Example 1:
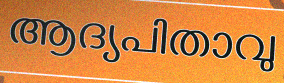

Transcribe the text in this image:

ആദ്യപിതാവു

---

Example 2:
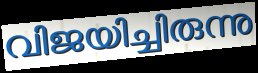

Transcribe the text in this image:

വിജയിച്ചിരുന്നു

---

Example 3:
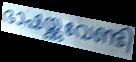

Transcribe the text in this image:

ഭാഷയ്ക്കുവേണ്ടി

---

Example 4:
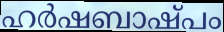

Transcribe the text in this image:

ഹർഷബാഷ്പം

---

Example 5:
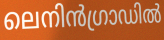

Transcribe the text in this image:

ലെനിൻഗ്രാഡിൽ